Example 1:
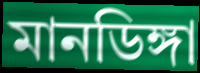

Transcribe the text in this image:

মানডিঙ্গা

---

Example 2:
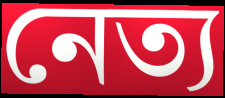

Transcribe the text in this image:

নেত্য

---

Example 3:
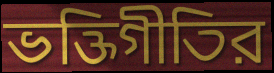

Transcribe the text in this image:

ভক্তিগীতির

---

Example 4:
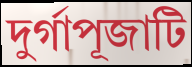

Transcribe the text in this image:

দুর্গাপূজাটি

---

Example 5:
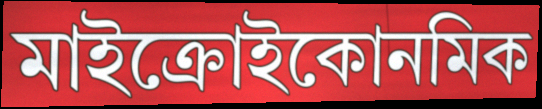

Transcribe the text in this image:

মাইক্রোইকোনমিক